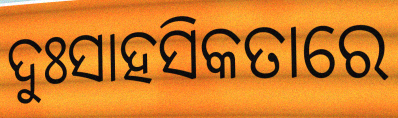
ଦୁଃସାହସିକତାରେ